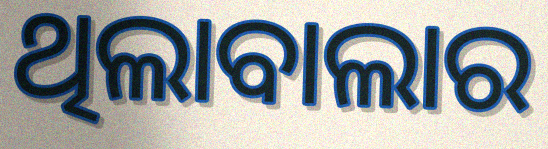
ଥିଲାବାଲାର